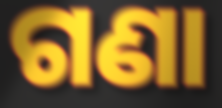
ଗଣା